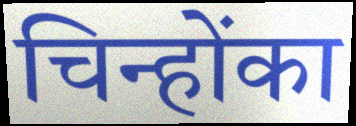
चिन्होंका